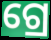
ଗ୍ରେ